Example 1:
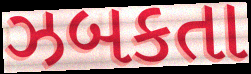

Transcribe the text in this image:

ઝબકતા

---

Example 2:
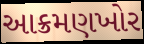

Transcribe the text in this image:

આક્રમણખોર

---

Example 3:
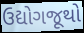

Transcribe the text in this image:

ઉદ્યોગજૂથો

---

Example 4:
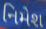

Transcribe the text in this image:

નિમેશ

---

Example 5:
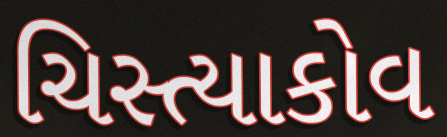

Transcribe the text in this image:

ચિસ્ત્યાકોવ